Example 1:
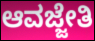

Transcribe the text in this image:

ಆವಜ್ಜೇತಿ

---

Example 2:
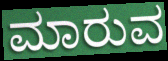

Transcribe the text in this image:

ಮಾರುವ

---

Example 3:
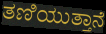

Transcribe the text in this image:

ತಣಿಯುತ್ತಾನೆ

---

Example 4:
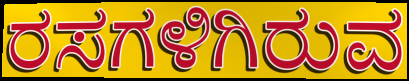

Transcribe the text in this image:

ರಸಗಳಿಗಿರುವ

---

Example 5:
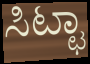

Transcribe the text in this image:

ಸಿಟ್ಟಾ